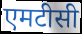
एमटीसी